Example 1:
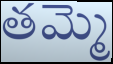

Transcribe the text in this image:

తమ్మె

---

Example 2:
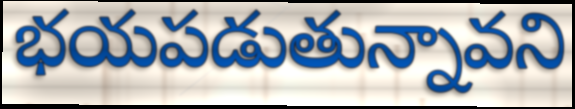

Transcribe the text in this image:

భయపడుతున్నావని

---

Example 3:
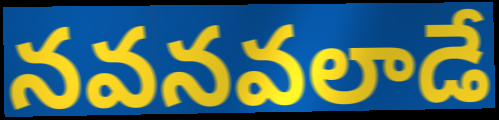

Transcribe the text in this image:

నవనవలాడే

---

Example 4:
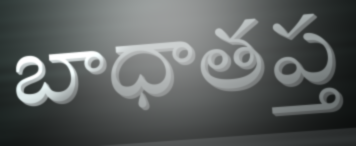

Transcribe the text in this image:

బాధాతప్త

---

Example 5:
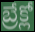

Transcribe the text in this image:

బ్రేక్లో